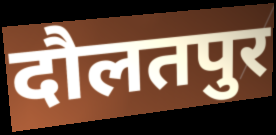
दौलतपुर